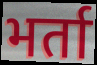
भर्ता